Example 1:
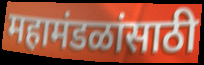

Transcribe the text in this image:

महामंडळांसाठी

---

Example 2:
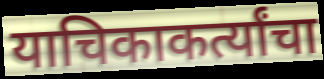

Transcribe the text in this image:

याचिकाकर्त्यांचा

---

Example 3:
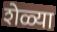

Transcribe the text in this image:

शेळ्या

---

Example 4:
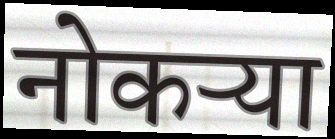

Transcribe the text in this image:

नोकऱ्या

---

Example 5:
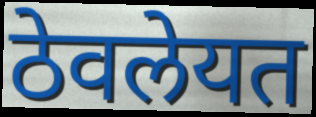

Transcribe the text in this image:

ठेवलेयत